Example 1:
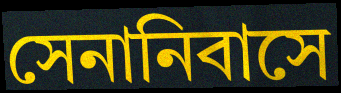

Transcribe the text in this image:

সেনানিবাসে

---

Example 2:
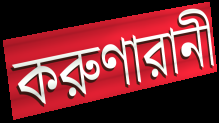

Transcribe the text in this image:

করুণারানী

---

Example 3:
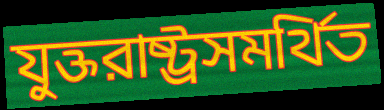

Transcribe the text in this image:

যুক্তরাষ্ট্রসমর্থিত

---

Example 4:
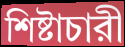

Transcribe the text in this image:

শিষ্টাচারী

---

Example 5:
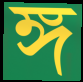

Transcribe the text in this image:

ঙ্গ